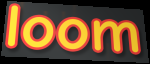
loom